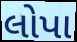
લોપા